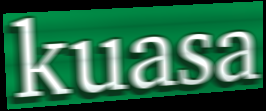
kuasa